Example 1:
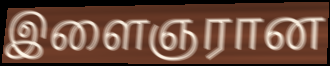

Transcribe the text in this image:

இளைஞரான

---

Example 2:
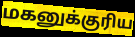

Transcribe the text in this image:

மகனுக்குரிய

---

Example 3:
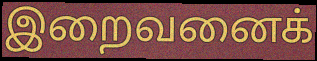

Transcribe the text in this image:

இறைவனைக்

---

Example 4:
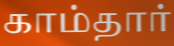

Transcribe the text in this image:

காம்தார்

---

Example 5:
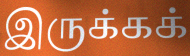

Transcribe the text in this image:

இருக்கக்